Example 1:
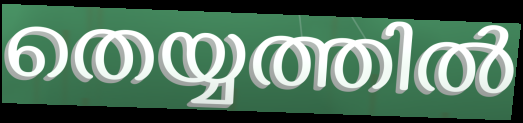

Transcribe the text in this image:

തെയ്യത്തിൽ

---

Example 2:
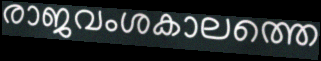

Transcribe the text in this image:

രാജവംശകാലത്തെ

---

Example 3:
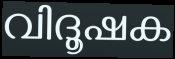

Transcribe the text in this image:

വിദൂഷക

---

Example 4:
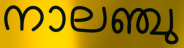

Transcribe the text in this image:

നാലഞ്ചു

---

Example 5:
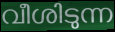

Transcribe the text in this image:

വീശിടുന്ന